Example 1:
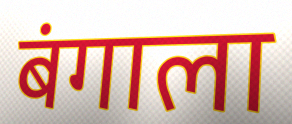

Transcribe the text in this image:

बंगाला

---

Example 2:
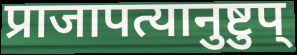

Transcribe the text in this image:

प्राजापत्यानुष्टुप्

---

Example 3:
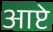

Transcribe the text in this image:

आप्टे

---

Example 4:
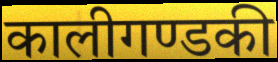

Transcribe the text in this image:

कालीगण्डकी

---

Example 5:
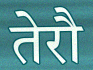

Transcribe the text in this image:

तेरौ